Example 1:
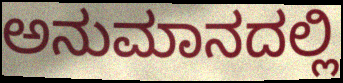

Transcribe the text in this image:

ಅನುಮಾನದಲ್ಲಿ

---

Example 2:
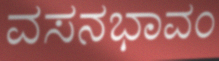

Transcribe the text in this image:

ವಸನಭಾವಂ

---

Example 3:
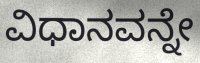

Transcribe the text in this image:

ವಿಧಾನವನ್ನೇ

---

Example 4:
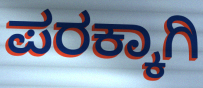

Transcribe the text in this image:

ಪರಕ್ಕಾಗಿ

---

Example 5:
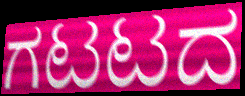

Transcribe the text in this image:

ಗಟಟದ